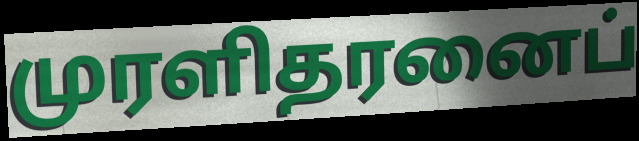
முரளிதரனைப்